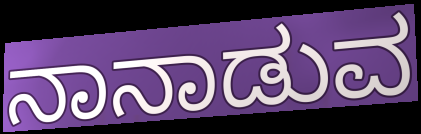
ನಾನಾಡುವ